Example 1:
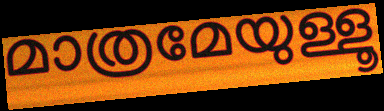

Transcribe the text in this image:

മാത്രമേയുള്ളൂ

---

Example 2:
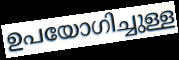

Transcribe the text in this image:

ഉപയോഗിച്ചുള്ള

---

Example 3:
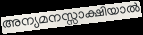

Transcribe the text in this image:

അന്യമനസ്സാക്ഷിയാൽ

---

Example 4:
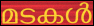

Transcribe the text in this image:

മടകൾ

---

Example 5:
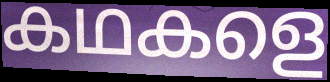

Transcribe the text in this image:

കഥകളെ